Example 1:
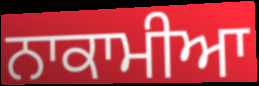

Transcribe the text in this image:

ਨਾਕਾਮੀਆ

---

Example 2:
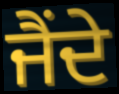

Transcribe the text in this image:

ਜੈਂਦੇ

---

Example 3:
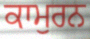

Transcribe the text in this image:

ਕਾਮੁਰਨ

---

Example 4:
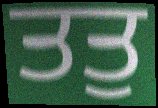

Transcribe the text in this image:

ਤਤੁ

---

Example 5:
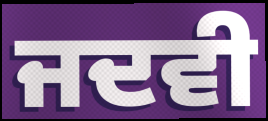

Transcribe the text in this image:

ਜਦਵੀ